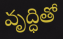
వృద్ధితో